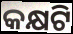
କକ୍ଷଟି